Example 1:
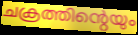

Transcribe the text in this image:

ചക്രത്തിന്റെയും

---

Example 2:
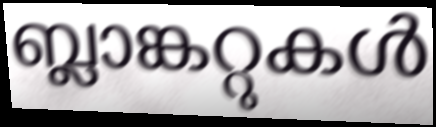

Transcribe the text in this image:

ബ്ലാങ്കറ്റുകൾ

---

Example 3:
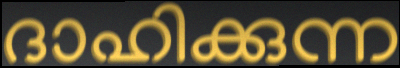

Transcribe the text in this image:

ദാഹിക്കുന്ന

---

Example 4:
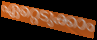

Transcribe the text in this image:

ഏറ്റെടുക്കാം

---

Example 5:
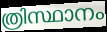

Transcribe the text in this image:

ത്രിസ്ഥാനം